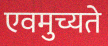
एवमुच्यते